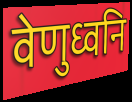
वेणुध्वनि